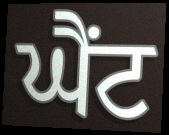
ਘੈਂਟ